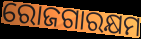
ରୋଜଗାରକ୍ଷମ